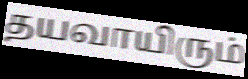
தயவாயிரும்